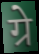
ग्रे